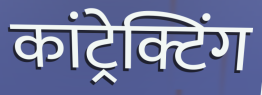
कांट्रेक्टिंग